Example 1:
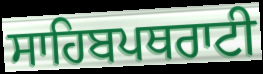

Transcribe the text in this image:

ਸਾਹਿਬਪਥਰਾਟੀ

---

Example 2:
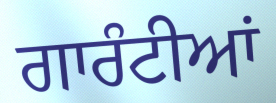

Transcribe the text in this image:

ਗਾਰੰਟੀਆਂ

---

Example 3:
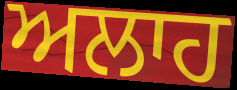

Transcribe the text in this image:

ਅਲਾਹ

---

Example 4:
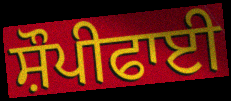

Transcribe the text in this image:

ਸ਼ੌਪੀਫਾਈ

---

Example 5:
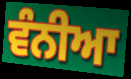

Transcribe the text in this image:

ਵੰਨੀਆ